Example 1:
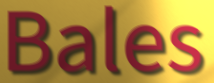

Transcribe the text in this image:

Bales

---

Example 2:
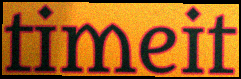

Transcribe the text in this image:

timeit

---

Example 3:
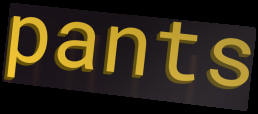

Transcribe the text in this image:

pants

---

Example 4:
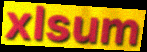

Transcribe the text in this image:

xlsum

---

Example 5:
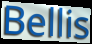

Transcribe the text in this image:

Bellis